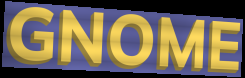
GNOME